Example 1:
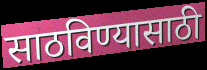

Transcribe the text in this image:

साठविण्यासाठी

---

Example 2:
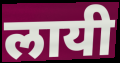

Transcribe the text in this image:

लायी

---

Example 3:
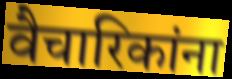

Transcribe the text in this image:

वैचारिकांना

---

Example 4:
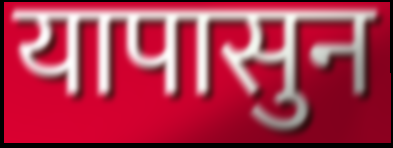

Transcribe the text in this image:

यापासुन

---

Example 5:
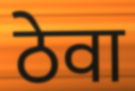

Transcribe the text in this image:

ठेवा